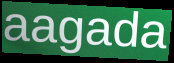
aagada